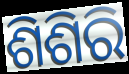
ଶିଶିରି